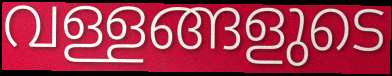
വള്ളങ്ങളുടെ